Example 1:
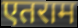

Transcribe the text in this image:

एतराम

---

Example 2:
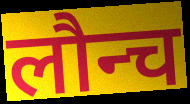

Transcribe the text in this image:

लौन्च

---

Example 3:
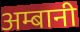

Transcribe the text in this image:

अम्‍बानी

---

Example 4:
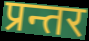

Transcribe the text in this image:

प्रन्तर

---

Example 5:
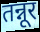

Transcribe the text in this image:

तन्नूर